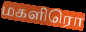
மகளிரொ